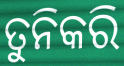
ତୁନିକରି